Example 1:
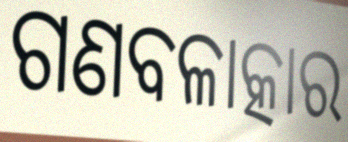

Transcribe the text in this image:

ଗଣବଳାତ୍କାର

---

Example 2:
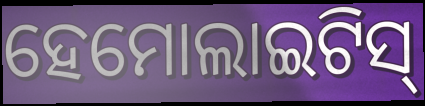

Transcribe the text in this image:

ହେମୋଲାଇଟିସ୍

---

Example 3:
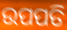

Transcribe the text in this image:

ଉପପତି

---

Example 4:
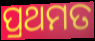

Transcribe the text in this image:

ପ୍ରଥମତ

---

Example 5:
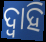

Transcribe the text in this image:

ଦ୍ଵାହି